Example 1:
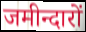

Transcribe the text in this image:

जमीन्दारों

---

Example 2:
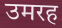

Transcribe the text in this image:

उमरह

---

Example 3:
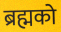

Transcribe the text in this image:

ब्रह्मको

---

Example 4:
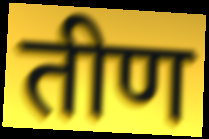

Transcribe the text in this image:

तीण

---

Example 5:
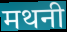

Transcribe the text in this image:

मथनी